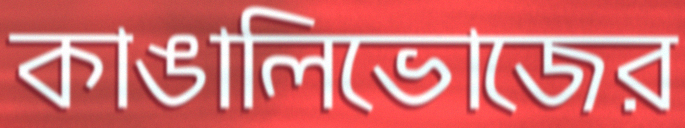
কাঙালিভোজের